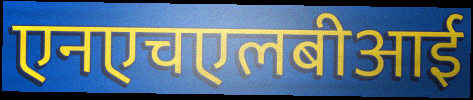
एनएचएलबीआई